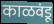
काळवंडू